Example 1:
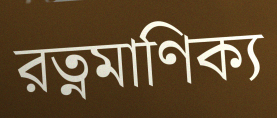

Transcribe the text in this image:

রত্নমাণিক্য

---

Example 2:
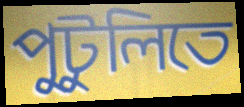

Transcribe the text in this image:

পুটুলিতে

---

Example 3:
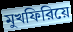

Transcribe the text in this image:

মুখফিরিয়ে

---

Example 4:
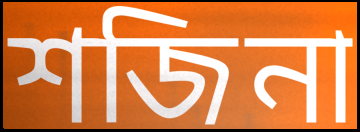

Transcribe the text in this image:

শজিনা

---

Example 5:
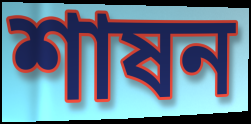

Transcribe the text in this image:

শাষন